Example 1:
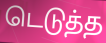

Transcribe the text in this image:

டெடுத்த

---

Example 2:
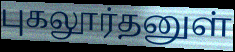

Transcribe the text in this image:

புகலூர்தனுள்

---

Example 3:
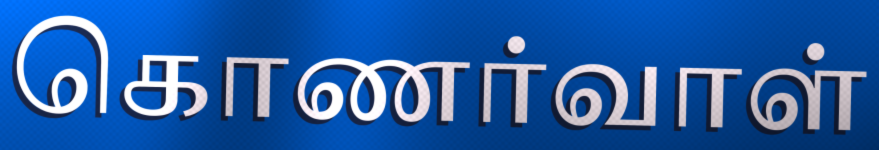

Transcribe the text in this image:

கொணர்வாள்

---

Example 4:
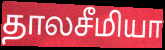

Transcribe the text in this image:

தாலசீமியா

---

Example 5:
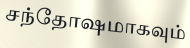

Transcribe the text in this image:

சந்தோஷமாகவும்